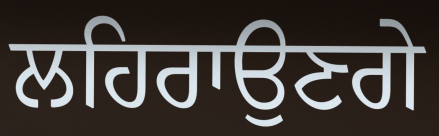
ਲਹਿਰਾਉਣਗੇ